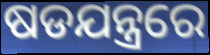
ଷଡଯନ୍ତ୍ରରେ